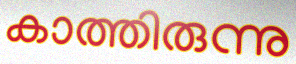
കാത്തിരുന്നു